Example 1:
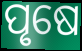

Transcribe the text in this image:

ପୃଷେ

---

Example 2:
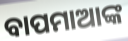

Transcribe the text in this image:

ବାପମାଆଙ୍କ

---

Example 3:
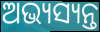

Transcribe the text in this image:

ଅଭ୍ୟସ୍ୟନ୍ତ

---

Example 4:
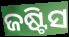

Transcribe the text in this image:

ଜଷ୍ଟିସ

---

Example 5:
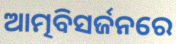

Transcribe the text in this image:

ଆତ୍ମବିସର୍ଜନରେ